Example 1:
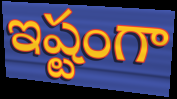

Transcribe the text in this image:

ఇష్టంగా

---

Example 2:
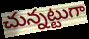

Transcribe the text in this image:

చున్నట్టుగా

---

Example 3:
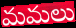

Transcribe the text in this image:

మమలు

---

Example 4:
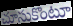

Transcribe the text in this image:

చూసుకొంటూ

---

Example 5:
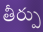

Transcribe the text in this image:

తీర్పు